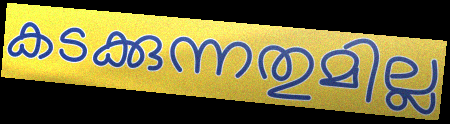
കടക്കുന്നതുമില്ല